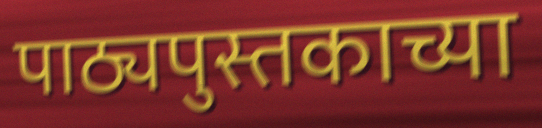
पाठ्यपुस्तकाच्या